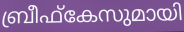
ബ്രീഫ്കേസുമായി